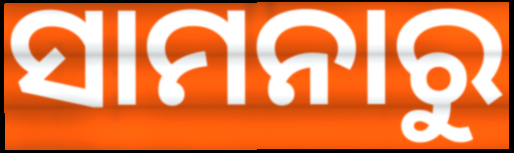
ସାମନାରୁ